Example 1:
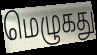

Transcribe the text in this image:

மெழுகது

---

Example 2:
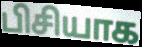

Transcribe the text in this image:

பிசியாக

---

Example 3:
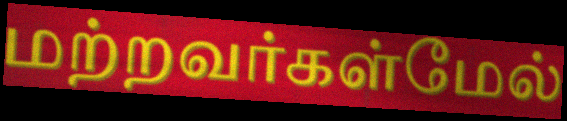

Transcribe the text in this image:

மற்றவர்கள்மேல்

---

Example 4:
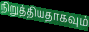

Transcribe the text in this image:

நிறுத்தியதாகவும்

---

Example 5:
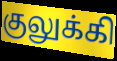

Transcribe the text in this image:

குலுக்கி